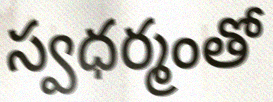
స్వధర్మంతో